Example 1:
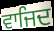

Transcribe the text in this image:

ਵਾਜਿਦ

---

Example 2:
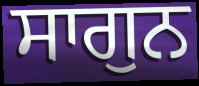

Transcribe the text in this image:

ਸਾਗੁਨ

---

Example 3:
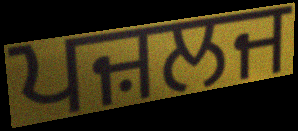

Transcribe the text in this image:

ਪਜ਼ਲਜ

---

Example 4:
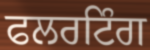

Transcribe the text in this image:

ਫਲਰਟਿੰਗ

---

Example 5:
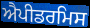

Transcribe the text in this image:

ਐਪੀਡਰਮਿਸ